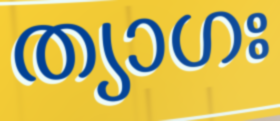
ത്യാഗഃ